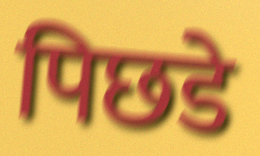
पिछडे